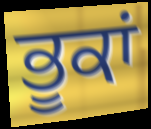
ਭੂਕਾਂ